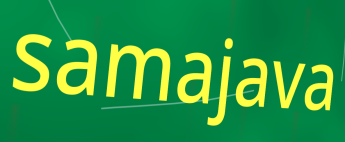
samajava